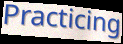
Practicing